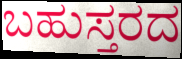
ಬಹುಸ್ತರದ